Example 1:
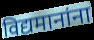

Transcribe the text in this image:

विद्यमानांना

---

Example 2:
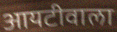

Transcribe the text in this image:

आयटीवाला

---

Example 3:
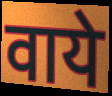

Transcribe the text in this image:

वाये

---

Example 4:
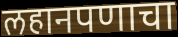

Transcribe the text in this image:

लहानपणाचा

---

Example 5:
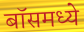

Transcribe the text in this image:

बॉसमध्ये